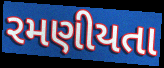
રમણીયતા